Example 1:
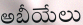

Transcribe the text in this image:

అబీయేలు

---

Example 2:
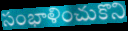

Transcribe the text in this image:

సంభాళించుకొని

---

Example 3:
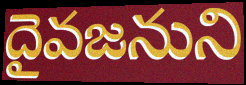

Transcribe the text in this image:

దైవజనుని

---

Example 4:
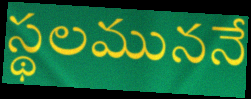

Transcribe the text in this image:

స్థలముననే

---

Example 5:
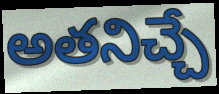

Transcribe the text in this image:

అతనిచ్చే